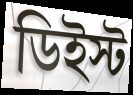
ডিইস্ট